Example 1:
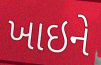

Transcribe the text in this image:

ખાઇને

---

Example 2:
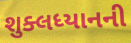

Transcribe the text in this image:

શુક્લધ્યાનની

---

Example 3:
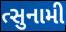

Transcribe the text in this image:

ત્સુનામી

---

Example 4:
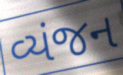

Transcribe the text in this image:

વ્યંજન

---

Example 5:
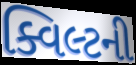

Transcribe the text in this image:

ક્વિલ્ટની